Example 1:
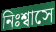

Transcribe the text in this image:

নিঃশ্বাসে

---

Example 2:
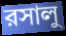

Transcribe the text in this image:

রসালু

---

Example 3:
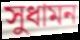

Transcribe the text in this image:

সুধামন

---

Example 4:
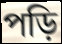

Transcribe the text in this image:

পড়ি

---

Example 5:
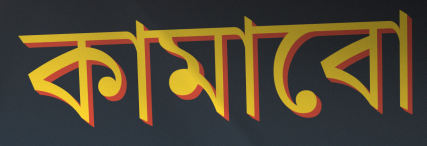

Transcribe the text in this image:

কামাবো